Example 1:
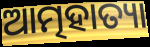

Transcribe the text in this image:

ଆତ୍ମହାତ୍ୟା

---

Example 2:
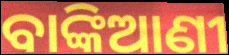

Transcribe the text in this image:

ବାଙ୍କିଆଣୀ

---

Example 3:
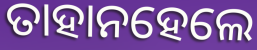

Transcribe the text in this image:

ତାହାନହେଲେ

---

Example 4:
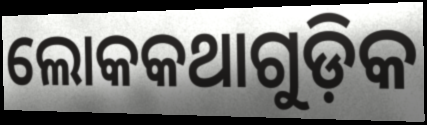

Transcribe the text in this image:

ଲୋକକଥାଗୁଡ଼ିକ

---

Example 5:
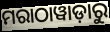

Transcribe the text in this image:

ମରାଠାୱାଡ଼ାରୁ